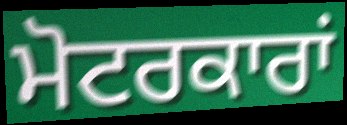
ਮੋਟਰਕਾਰਾਂ